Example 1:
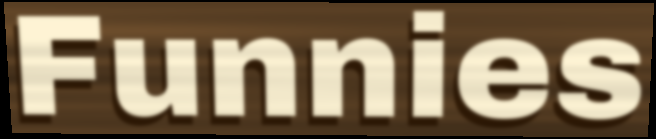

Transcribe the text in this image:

Funnies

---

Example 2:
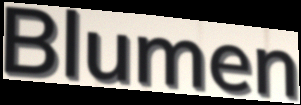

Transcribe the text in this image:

Blumen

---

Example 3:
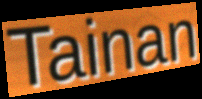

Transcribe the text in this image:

Tainan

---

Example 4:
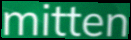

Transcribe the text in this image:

mitten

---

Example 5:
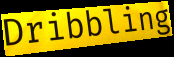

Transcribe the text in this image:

Dribbling